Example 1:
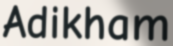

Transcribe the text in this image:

Adikham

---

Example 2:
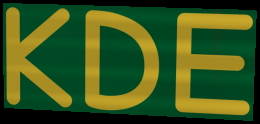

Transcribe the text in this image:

KDE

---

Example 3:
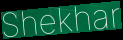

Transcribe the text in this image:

Shekhar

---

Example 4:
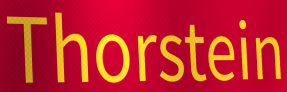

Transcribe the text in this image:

Thorstein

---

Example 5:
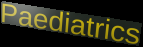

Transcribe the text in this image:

Paediatrics